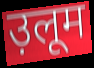
उ़लूम